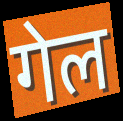
गेल